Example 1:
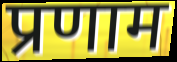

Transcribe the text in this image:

प्रणाम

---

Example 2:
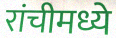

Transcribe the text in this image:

रांचीमध्ये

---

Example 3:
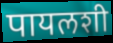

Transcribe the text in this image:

पायलशी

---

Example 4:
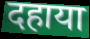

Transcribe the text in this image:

दहाया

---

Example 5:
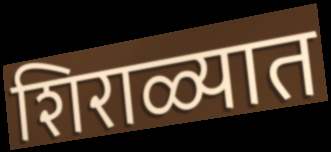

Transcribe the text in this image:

शिराळ्यात